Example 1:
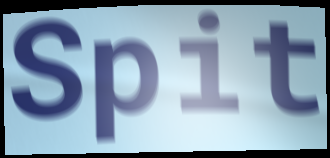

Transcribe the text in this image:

Spit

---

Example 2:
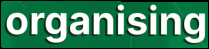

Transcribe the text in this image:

organising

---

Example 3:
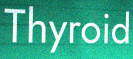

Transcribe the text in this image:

Thyroid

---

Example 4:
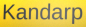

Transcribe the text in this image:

Kandarp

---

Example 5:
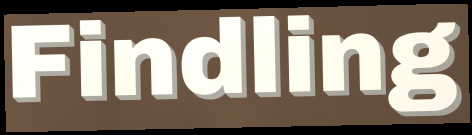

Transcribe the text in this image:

Findling